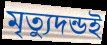
মৃত্যুদন্ডই